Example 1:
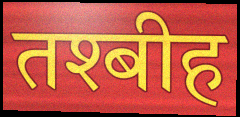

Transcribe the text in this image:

तश्बीह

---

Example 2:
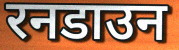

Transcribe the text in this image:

रनडाउन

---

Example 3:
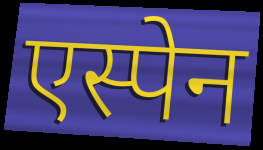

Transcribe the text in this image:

एस्पेन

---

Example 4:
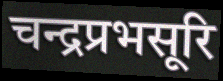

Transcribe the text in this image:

चन्द्रप्रभसूरि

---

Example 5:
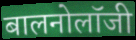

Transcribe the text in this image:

बालनोलॉजी